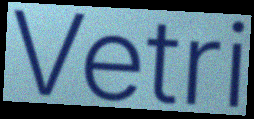
Vetri